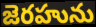
జెరహును